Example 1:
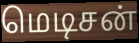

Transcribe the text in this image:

மெடிசன்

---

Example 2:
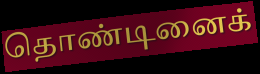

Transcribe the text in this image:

தொண்டினைக்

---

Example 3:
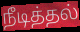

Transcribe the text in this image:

நீடித்தல்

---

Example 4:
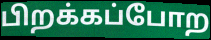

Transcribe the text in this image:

பிறக்கப்போற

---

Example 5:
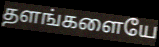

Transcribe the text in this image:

தளங்களையே